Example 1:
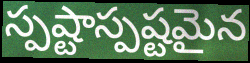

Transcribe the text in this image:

స్పష్టాస్పష్టమైన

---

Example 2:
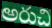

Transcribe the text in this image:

అరుచి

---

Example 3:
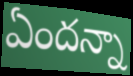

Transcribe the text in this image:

ఏందన్నా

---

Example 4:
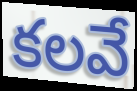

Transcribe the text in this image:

కలవే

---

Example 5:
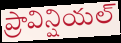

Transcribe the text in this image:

ప్రావిన్షియల్